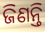
ଜିଣନ୍ତି